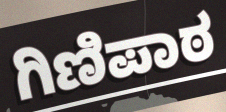
ಗಿಣಿಪಾಠ